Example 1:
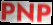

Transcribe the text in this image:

PNP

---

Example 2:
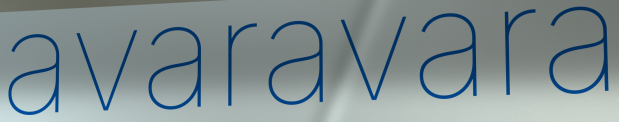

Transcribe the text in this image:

avaravara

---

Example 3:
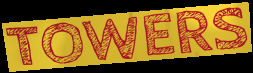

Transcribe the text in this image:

TOWERS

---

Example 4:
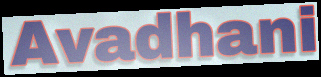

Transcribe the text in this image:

Avadhani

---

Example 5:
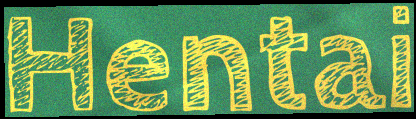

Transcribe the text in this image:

Hentai